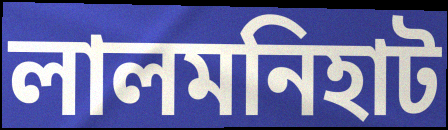
লালমনিহাট